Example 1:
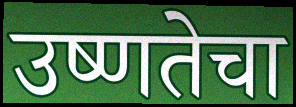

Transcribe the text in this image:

उष्णतेचा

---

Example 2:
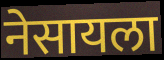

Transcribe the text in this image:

नेसायला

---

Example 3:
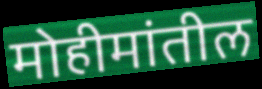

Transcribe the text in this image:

मोहीमांतील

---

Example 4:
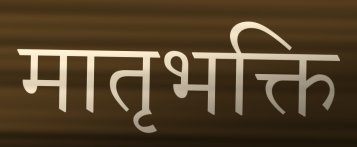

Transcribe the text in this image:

मातृभक्ति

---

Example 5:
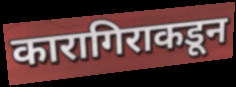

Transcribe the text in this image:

कारागिराकडून